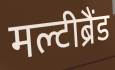
मल्टीब्रैंड